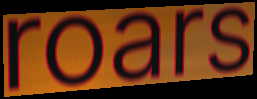
roars